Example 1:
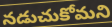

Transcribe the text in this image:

నడుచుకోమని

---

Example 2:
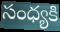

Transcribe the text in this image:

సంధ్యకి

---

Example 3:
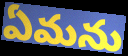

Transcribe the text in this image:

ఏమను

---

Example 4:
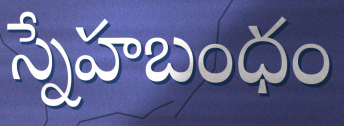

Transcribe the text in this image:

స్నేహబంధం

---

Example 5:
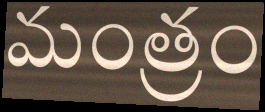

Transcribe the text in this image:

మంత్రం